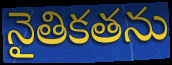
నైతికతను